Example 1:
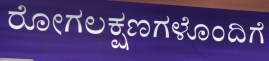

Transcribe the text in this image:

ರೋಗಲಕ್ಷಣಗಳೊಂದಿಗೆ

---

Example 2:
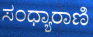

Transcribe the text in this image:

ಸಂಧ್ಯಾರಾಣಿ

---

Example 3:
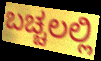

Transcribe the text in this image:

ಬಚ್ಚಲಲ್ಲಿ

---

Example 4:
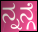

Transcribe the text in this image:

ನ್ನನ್ಗೆ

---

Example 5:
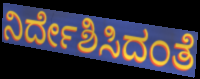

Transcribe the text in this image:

ನಿರ್ದೇಶಿಸಿದಂತೆ